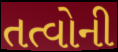
તત્વોની